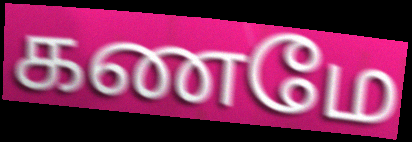
கணமே